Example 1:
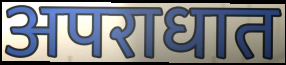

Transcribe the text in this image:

अपराधात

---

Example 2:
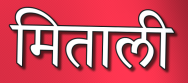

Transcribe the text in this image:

मिताली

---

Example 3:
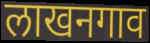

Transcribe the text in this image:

लाखनगाव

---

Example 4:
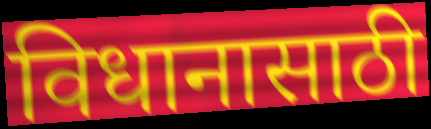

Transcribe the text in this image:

विधानासाठी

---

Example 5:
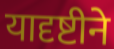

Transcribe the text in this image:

यादृष्टीने